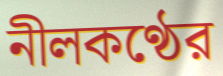
নীলকণ্ঠের